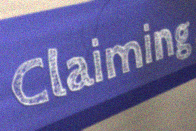
Claiming